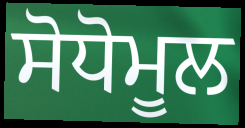
ਸੋਧੋਮੂਲ